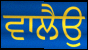
ਵਾਲੈਉ